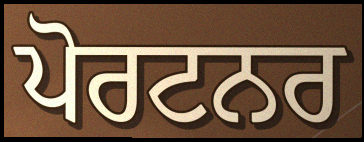
ਪੋਰਟਨਰ